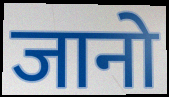
जानो